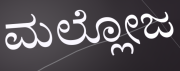
ಮಲ್ಲೋಜ